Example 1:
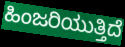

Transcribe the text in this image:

ಹಿಂಜರಿಯುತ್ತಿದೆ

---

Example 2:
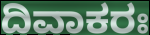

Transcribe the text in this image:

ದಿವಾಕರಃ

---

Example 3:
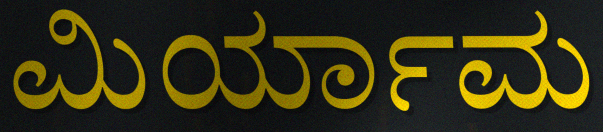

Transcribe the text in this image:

ಮಿರ್ಯಾಮ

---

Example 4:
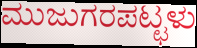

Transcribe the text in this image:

ಮುಜುಗರಪಟ್ಟಳು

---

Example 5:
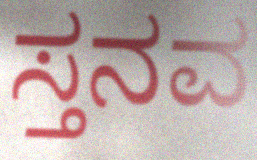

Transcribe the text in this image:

ಸ್ತನವ